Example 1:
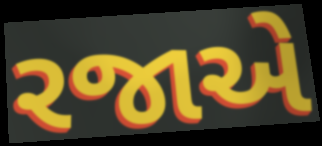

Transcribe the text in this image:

રજાએ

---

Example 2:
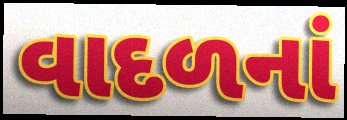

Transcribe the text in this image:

વાદળનાં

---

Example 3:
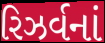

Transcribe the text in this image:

રિઝર્વનાં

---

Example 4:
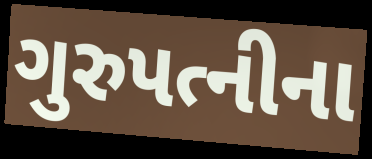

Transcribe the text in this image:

ગુરુપત્નીના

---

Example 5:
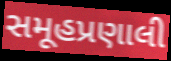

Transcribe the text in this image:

સમૂહપ્રણાલી